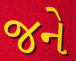
જને